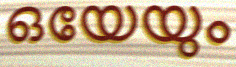
ഒയേയും